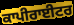
ਕਾਪੀਰਾਈਟਰ